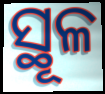
ସ୍ଥୂଳ